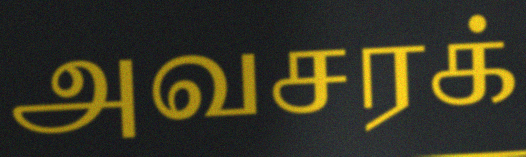
அவசரக்